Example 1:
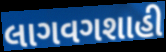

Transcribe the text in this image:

લાગવગશાહી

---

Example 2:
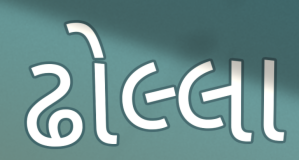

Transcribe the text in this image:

ઢોલ્લા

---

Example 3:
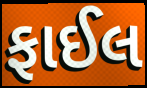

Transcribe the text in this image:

ફાઈલ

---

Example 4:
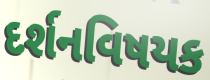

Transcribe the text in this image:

દર્શનવિષયક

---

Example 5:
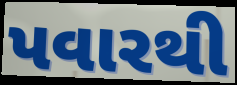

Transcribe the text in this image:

પવારથી